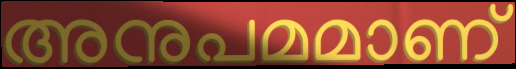
അനുപമമാണ്